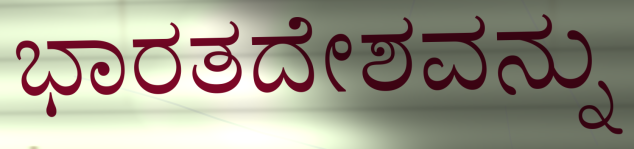
ಭಾರತದೇಶವನ್ನು